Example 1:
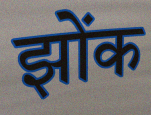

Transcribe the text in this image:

झोंक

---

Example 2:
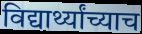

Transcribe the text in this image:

विद्यार्थ्यांच्याच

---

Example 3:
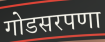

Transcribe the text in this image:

गोडसरपणा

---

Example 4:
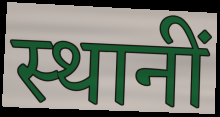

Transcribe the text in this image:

स्थानीं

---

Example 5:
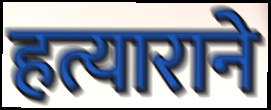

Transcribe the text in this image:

हत्याराने